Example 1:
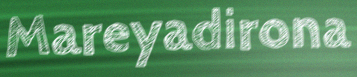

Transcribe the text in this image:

Mareyadirona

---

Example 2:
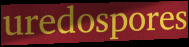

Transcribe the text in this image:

uredospores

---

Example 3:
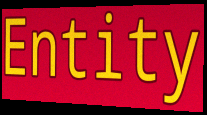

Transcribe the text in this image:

Entity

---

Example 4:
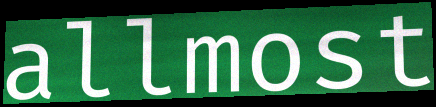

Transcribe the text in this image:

allmost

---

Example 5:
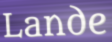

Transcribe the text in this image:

Lande